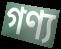
গণ্য